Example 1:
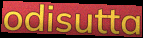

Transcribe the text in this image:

odisutta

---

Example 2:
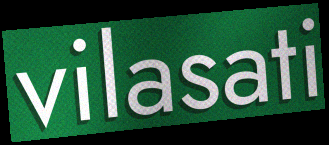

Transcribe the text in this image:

vilasati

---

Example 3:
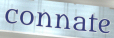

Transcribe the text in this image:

connate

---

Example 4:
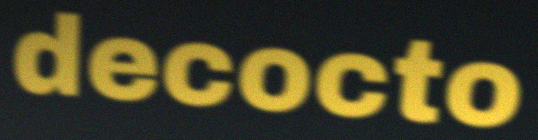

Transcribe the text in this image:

decocto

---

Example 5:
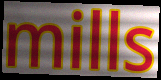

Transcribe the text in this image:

mills